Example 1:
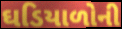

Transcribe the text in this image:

ઘડિયાળોની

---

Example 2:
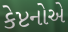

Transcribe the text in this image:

કેપ્ટનોએ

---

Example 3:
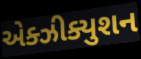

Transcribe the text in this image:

એક્ઝીક્યુશન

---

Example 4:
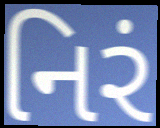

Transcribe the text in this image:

નિરં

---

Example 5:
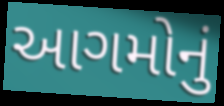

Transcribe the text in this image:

આગમોનું